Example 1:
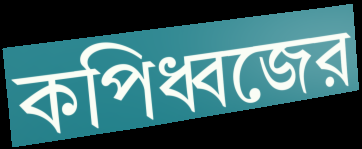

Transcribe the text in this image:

কপিধ্বজের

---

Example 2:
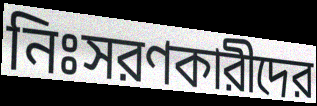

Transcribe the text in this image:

নিঃসরণকারীদের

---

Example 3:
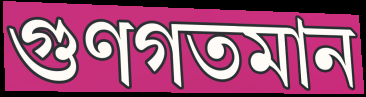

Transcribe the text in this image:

গুণগতমান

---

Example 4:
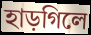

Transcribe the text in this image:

হাড়গিলে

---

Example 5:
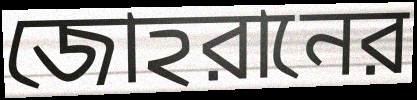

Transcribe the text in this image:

জোহরানের